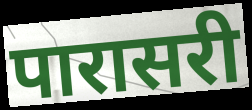
पारासरी